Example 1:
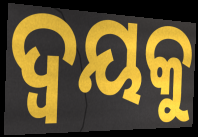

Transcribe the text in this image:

ଦ୍ୱୟକୁ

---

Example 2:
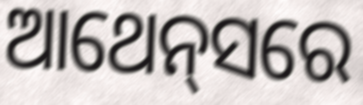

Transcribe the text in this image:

ଆଥେନ୍‍ସରେ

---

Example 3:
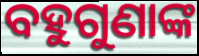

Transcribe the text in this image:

ବହୁଗୁଣାଙ୍କ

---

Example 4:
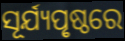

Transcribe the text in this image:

ସୂର୍ଯ୍ୟପୃଷ୍ଠରେ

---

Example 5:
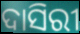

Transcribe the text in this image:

ଦାସିରୀ